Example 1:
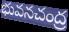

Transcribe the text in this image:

భువనచంద్ర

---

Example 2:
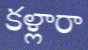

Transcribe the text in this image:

కళ్లారా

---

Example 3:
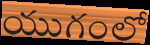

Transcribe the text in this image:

యుగంలో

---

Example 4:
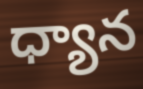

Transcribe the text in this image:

ధ్యాన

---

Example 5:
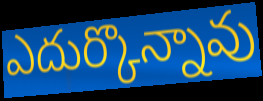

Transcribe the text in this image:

ఎదుర్కొన్నావు